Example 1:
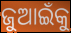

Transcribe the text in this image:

ଜୁଆଇଁକୁ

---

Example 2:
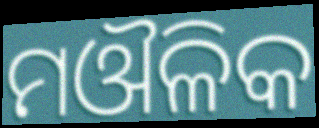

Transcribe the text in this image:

ମଔଳିକ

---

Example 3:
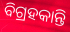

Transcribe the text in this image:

ବିଗ୍ରହକାନ୍ତି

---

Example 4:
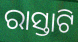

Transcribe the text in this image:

ରାସ୍ତାଟି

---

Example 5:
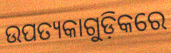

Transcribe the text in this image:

ଉପତ୍ୟକାଗୁଡ଼ିକରେ